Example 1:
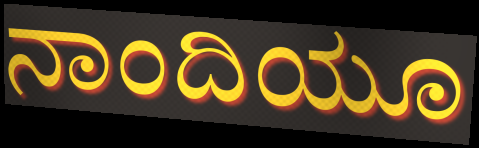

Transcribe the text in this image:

ನಾಂದಿಯೂ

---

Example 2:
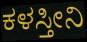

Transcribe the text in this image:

ಕಳಸ್ತೀನಿ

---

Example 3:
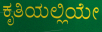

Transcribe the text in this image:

ಕೃತಿಯಲ್ಲಿಯೇ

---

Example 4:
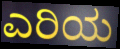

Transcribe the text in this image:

ಎರಿಯ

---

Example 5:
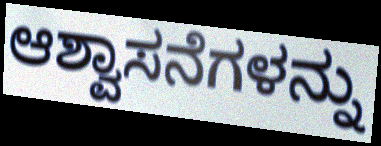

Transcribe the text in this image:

ಆಶ್ವಾಸನೆಗಳನ್ನು